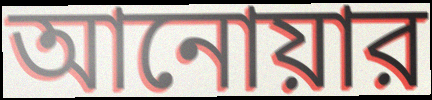
আনোয়ার